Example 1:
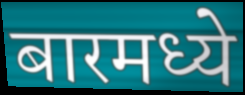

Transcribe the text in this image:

बारमध्ये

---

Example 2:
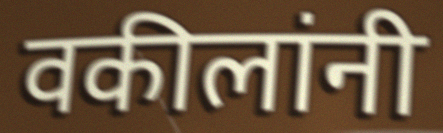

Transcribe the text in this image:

वकीलांनी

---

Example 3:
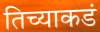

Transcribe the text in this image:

तिच्याकडं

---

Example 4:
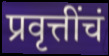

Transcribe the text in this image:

प्रवृत्तींचं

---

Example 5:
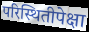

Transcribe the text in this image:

परिस्थितीपेक्षा